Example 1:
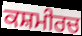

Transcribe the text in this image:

ਕਸ਼ਮੀਰਚ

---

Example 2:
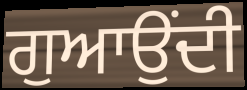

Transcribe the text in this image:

ਗੁਆਉਂਦੀ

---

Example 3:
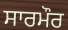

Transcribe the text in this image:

ਸਾਰਮੌਰ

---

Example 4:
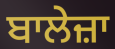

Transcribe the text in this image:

ਬਾਲੇਜ਼ਾ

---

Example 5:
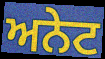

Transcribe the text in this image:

ਅਨੇਟ